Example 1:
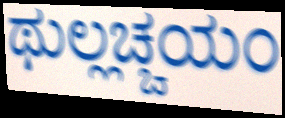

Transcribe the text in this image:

ಥುಲ್ಲಚ್ಚಯಂ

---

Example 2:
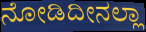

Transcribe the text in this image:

ನೋಡಿದೀನಲ್ಲಾ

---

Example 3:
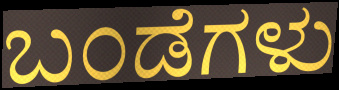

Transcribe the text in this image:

ಬಂಡೆಗಳು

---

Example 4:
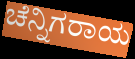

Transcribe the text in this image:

ಚೆನ್ನಿಗರಾಯ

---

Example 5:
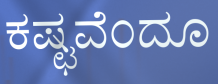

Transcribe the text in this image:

ಕಷ್ಟವೆಂದೂ